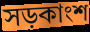
সড়কাংশ